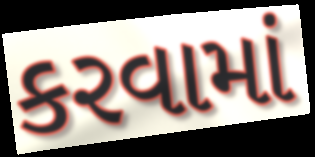
કરવામાં